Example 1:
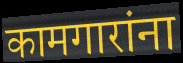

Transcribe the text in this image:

कामगारांना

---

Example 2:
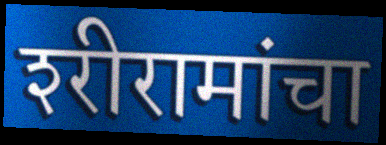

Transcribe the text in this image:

श्रीरामांचा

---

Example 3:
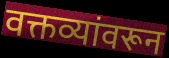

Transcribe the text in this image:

वक्तव्यांवरून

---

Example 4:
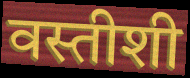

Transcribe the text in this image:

वस्‍तीशी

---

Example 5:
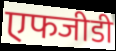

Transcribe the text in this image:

एफजीडी